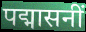
पद्मासनीं